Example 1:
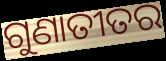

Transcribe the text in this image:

ଗୁଣାତୀତର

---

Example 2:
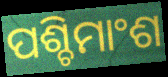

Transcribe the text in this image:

ପଶ୍ଚିମାଂଶ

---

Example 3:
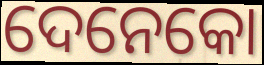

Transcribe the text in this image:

ଦେନେକୋ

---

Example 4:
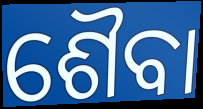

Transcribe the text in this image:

ଶୈବା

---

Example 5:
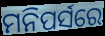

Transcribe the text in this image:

ମନିପର୍ସରେ